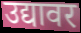
उद्यावर